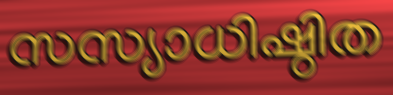
സസ്യാധിഷ്ഠിത